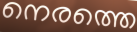
നെരത്തെ